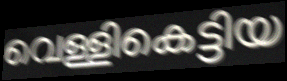
വെള്ളികെട്ടിയ